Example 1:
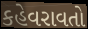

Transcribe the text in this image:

કહેવરાવતો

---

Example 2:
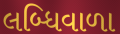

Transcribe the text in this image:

લબ્ધિવાળા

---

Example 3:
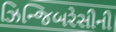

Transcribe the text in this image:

ઝિન્જિબરેસીની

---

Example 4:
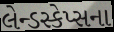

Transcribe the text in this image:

લેન્ડસ્કેપ્સના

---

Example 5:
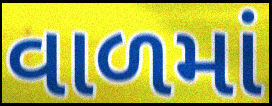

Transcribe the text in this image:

વાળમાં